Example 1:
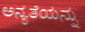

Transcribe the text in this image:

ಅನ್ಯತೆಯನ್ನು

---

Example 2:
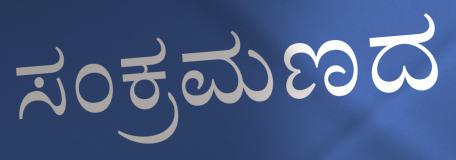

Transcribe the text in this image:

ಸಂಕ್ರಮಣದ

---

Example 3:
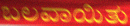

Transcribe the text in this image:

ಬಲವಾಯಿತು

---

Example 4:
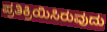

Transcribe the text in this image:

ಪ್ರತಿಕ್ರಿಯಿಸಿರುವುದು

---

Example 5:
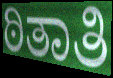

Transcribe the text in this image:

ಠಿತಾತಿ